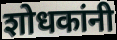
शोधकांनी